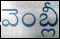
వెంబ్లీ